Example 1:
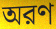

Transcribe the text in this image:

অরণ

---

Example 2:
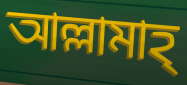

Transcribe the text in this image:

আল্লামাহ্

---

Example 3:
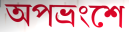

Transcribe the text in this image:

অপভ্রংশে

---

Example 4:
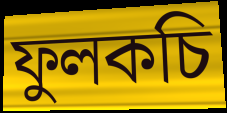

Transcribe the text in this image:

ফুলকচি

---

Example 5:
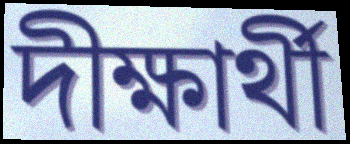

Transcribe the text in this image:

দীক্ষার্থী